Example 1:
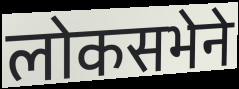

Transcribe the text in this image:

लोकसभेने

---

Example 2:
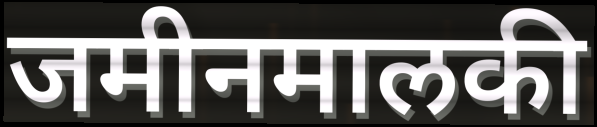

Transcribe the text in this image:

जमीनमालकी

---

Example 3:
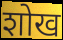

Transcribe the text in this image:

शोख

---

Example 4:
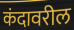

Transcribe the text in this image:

कंदावरील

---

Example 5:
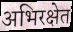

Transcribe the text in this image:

अभिरक्षेत